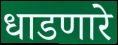
धाडणारे